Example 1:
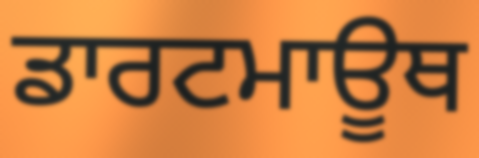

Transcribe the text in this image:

ਡਾਰਟਮਾਊਥ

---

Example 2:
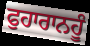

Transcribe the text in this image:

ਫੁਹਾਰਾਨਹੂੰ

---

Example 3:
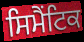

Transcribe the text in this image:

ਸਿਮੈਂਟਿਕ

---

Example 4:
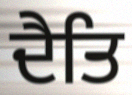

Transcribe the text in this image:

ਦੈਤਿ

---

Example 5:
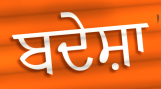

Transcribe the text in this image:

ਬਦੇਸ਼ਾ